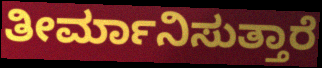
ತೀರ್ಮಾನಿಸುತ್ತಾರೆ